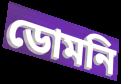
ডোমনি